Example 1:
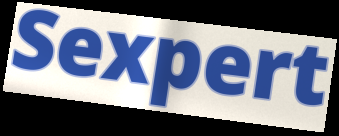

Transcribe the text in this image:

Sexpert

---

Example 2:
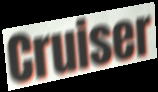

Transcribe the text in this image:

Cruiser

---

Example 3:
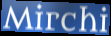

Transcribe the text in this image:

Mirchi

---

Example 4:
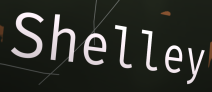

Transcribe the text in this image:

Shelley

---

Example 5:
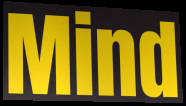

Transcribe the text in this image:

Mind